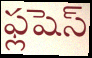
ఫ్లషెస్